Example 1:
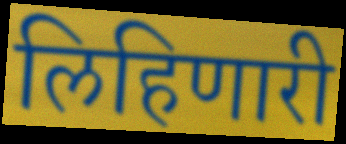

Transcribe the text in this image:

लिहिणारी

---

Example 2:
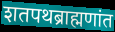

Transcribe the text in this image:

शतपथब्राह्मणांत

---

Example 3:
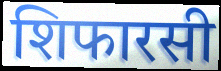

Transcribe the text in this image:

शिफारसी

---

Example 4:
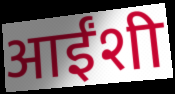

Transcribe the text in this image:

आईंशी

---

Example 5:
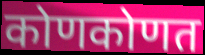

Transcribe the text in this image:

कोणकोणत